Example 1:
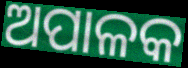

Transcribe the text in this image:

ଅପାଳକ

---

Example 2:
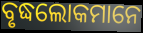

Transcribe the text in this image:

ବୃଦ୍ଧଲୋକମାନେ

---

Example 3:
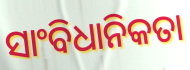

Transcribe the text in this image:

ସାଂବିଧାନିକତା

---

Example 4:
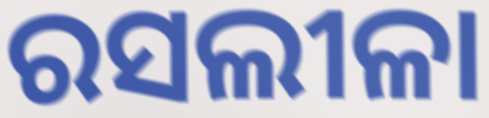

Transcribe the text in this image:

ରସଲୀଳା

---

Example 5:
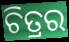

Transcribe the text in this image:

ଚିତ୍ରର